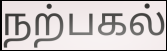
நற்பகல்